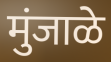
मुंजाळे